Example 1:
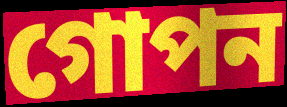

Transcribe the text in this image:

গোপন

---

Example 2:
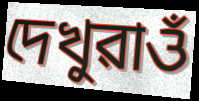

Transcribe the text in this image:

দেখুৱাওঁ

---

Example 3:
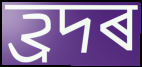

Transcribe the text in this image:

হ্ৰদৰ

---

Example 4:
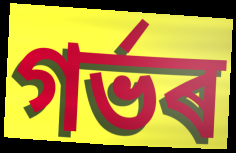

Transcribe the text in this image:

গৰ্ভৰ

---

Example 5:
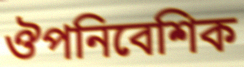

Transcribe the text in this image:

ঔপনিবেশিক